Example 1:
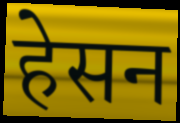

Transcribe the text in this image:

हेसन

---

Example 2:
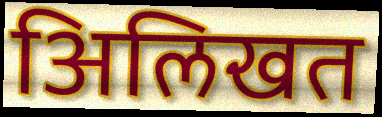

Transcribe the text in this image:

अिलिखत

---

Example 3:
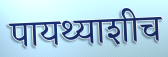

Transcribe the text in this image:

पायथ्याशीच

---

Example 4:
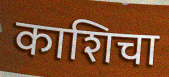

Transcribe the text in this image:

काशिचा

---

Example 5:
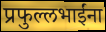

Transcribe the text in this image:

प्रफुल्लभाईंना